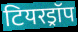
टियरड्रॉप